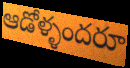
ఆడోళ్ళందరూ